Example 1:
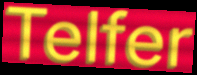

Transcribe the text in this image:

Telfer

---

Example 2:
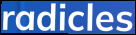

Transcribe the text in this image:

radicles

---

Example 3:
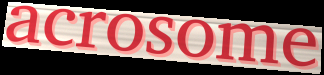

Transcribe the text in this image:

acrosome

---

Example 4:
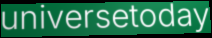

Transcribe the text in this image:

universetoday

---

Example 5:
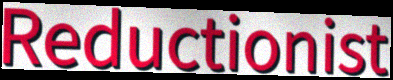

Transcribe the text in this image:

Reductionist